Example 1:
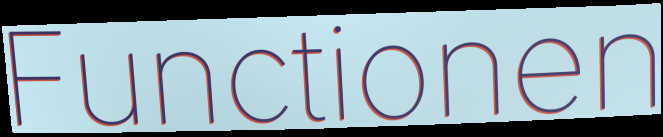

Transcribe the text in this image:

Functionen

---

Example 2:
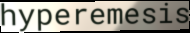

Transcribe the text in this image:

hyperemesis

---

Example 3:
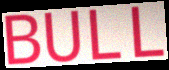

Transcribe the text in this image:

BULL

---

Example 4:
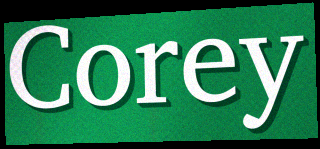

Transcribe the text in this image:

Corey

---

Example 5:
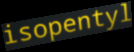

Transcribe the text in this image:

isopentyl